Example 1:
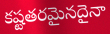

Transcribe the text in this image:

కష్టతరమైనదైనా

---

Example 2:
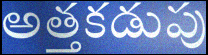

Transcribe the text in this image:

అత్తకడుపు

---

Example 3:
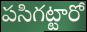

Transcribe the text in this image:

పసిగట్టారో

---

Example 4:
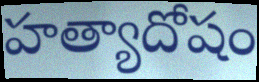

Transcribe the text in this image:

హత్యాదోషం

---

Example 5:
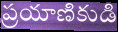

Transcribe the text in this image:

ప్రయాణికుడి